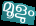
മൂളും